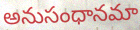
అనుసంధానమా